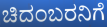
ಚಿದಂಬರನಿಗೆ